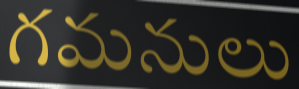
గమనులు